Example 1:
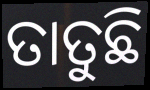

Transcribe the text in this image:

ତାତୁଛି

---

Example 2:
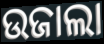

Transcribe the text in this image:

ଉଜାଲା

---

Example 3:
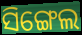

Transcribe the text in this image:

ସିଙ୍ଗେଲ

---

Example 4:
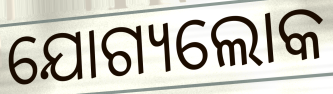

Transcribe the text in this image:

ଯୋଗ୍ୟଲୋକ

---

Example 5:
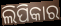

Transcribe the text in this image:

ଲିପିକାର